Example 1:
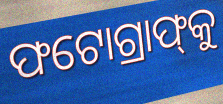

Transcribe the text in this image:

ଫଟୋଗ୍ରାଫ୍‌କୁ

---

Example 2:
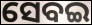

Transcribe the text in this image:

ସେବଇ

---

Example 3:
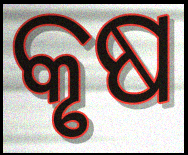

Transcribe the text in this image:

କୃଷ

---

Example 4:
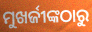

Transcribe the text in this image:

ମୁଖର୍ଜୀଙ୍କଠାରୁ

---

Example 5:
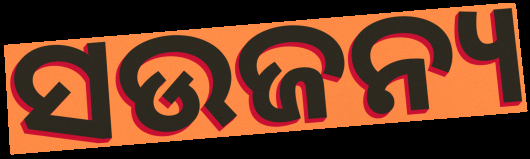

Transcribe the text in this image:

ସଉଜନ୍ୟ